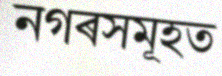
নগৰসমূহত